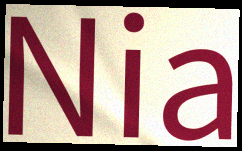
Nia